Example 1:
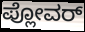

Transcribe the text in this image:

ಪ್ಲೋವರ್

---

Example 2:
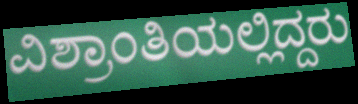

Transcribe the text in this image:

ವಿಶ್ರಾಂತಿಯಲ್ಲಿದ್ದರು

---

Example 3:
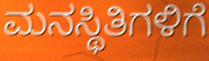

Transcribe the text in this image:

ಮನಸ್ಥಿತಿಗಳಿಗೆ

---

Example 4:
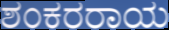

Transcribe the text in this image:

ಶಂಕರರಾಯ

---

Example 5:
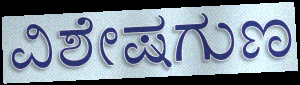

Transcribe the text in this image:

ವಿಶೇಷಗುಣ